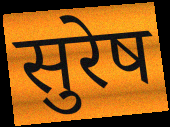
सुरेष